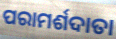
ପରାମର୍ଶଦାତା